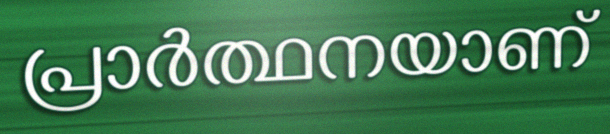
പ്രാർത്ഥനയാണ്